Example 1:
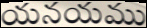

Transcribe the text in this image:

యనయము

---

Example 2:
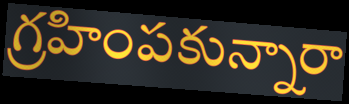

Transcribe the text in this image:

గ్రహింపకున్నారా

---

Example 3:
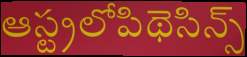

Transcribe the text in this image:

ఆస్ట్రలోపిథెసిన్స్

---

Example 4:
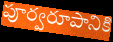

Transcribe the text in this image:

పూర్వరూపానికి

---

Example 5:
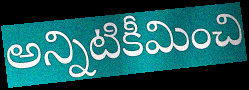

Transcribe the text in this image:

అన్నిటికీమించి